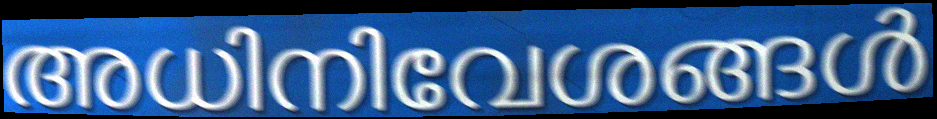
അധിനിവേശങ്ങൾ